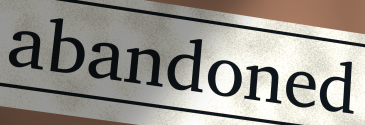
abandoned